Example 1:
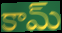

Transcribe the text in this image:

కామ్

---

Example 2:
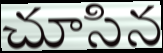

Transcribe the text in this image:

చూసిన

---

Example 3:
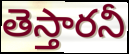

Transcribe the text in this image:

తెస్తారనీ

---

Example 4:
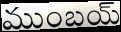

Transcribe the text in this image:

ముంబయ్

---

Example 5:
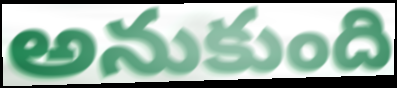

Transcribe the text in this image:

అనుకుంది